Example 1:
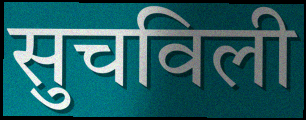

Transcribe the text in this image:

सुचविली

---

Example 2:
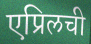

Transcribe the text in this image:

एप्रिलची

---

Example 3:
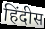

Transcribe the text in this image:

हिंदीस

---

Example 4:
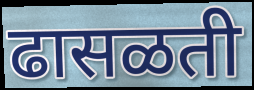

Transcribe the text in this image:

ढासळती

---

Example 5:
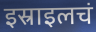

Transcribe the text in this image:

इस्राइलचं